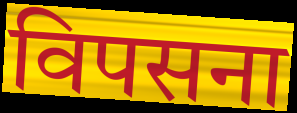
विपसना